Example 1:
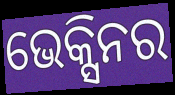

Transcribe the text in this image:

ଭେକ୍ସିନର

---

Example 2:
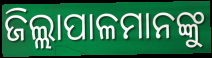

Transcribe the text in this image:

ଜିଲ୍ଲାପାଳମାନଙ୍କୁ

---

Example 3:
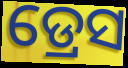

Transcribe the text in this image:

ଡ୍ରେସ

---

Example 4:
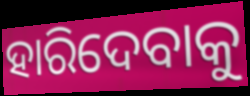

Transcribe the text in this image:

ହାରିଦେବାକୁ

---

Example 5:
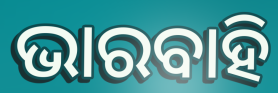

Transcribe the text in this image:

ଭାରବାହି